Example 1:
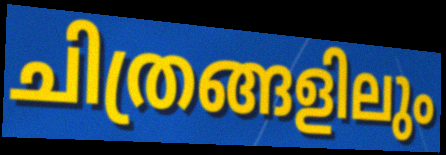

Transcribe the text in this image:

ചിത്രങ്ങളിലും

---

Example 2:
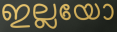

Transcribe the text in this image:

ഇല്ലയോ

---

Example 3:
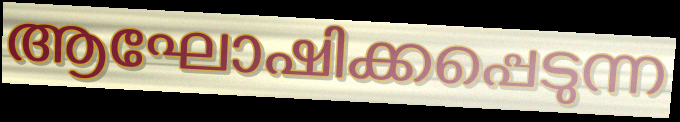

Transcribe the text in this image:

ആഘോഷിക്കപ്പെടുന്ന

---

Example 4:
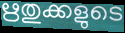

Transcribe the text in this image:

ഋതുക്കളുടെ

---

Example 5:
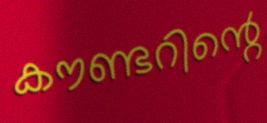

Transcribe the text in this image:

കൗണ്ടറിന്റെ